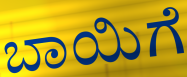
ಬಾಯಿಗೆ